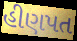
હીણપત